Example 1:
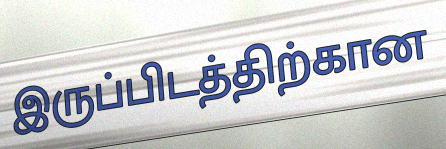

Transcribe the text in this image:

இருப்பிடத்திற்கான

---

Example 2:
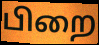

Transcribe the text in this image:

பிறை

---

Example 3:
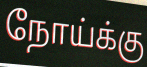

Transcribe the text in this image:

நோய்க்கு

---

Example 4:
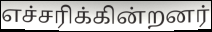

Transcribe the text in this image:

எச்சரிக்கின்றனர்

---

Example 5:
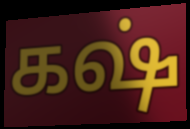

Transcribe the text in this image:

கஷ்